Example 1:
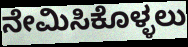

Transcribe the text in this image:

ನೇಮಿಸಿಕೊಳ್ಳಲು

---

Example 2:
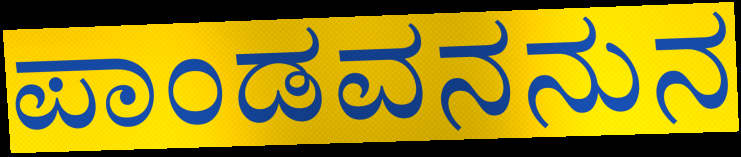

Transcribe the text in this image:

ಪಾಂಡವನನುನ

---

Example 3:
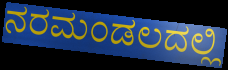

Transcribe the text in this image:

ನರಮಂಡಲದಲ್ಲಿ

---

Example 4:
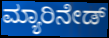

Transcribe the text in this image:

ಮ್ಯಾರಿನೇಡ್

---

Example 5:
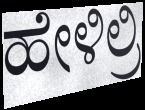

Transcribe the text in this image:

ಹೇಳಿಲ್ರಿ